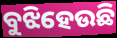
ବୁଝିହେଉଛି